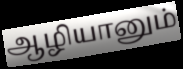
ஆழியானும்